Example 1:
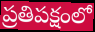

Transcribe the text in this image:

ప్రతిపక్షంలో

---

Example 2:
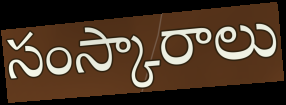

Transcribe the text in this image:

సంస్కారాలు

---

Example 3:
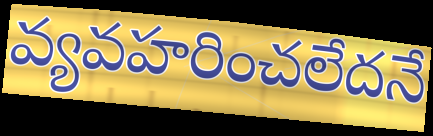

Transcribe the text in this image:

వ్యవహరించలేదనే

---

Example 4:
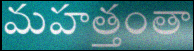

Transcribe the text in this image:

మహత్తంతా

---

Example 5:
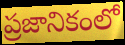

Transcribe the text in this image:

ప్రజానికంలో